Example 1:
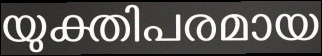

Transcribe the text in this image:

യുക്തിപരമായ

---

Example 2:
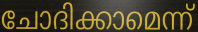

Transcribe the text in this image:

ചോദിക്കാമെന്ന്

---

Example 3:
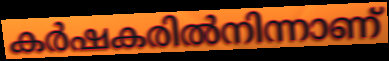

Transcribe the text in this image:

കർഷകരിൽനിന്നാണ്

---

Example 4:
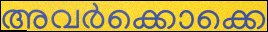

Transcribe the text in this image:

അവർക്കൊക്കെ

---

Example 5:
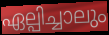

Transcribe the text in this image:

ഏല്പിച്ചാലും